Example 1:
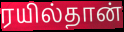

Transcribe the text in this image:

ரயில்தான்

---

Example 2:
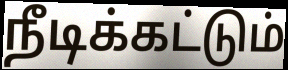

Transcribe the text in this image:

நீடிக்கட்டும்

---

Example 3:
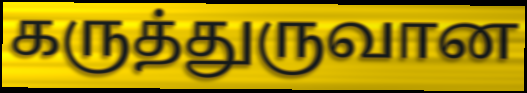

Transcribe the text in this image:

கருத்துருவான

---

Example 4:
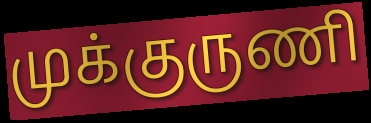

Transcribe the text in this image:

முக்குருணி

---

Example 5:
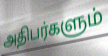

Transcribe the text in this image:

அதிபர்களும்